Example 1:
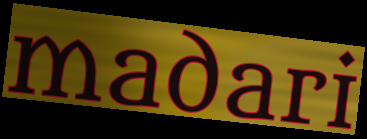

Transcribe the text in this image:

madari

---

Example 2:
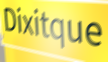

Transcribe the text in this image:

Dixitque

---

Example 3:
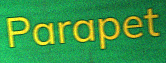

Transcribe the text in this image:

Parapet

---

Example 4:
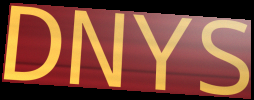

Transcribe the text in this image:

DNYS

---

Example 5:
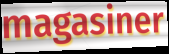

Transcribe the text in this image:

magasiner